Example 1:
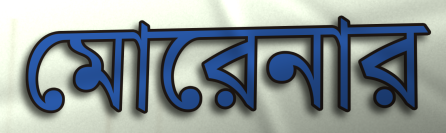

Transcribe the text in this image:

মোরেনার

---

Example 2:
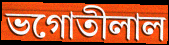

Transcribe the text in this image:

ভগোতীলাল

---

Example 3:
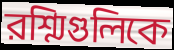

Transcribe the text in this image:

রশ্মিগুলিকে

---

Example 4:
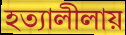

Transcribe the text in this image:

হত্যালীলায়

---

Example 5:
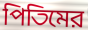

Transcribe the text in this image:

পিতিমের